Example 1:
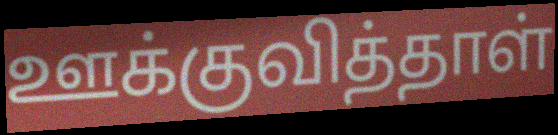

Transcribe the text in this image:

ஊக்குவித்தாள்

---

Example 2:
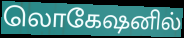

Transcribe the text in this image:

லொகேஷனில்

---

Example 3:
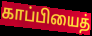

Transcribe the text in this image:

காப்பியைத்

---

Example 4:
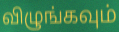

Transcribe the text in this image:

விழுங்கவும்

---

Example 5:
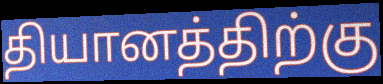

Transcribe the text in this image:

தியானத்திற்கு